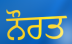
ਨੌਰਤ